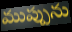
ముప్పును